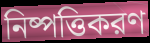
নিষ্পত্তিকরণ